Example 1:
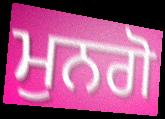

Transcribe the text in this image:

ਮੁਨਗੋ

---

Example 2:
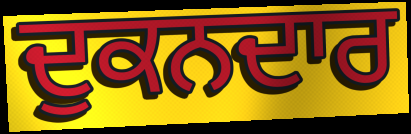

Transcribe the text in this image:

ਦੁਕਨਦਾਰ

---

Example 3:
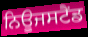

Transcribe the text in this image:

ਨਿਊਜਸਟੈਂਡ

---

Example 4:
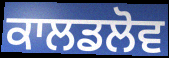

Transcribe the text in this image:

ਕਾਲਡਲੋਵ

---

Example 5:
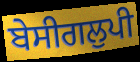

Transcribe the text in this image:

ਬੇਸੀਗਲੁਪੀ